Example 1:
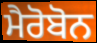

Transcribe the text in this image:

ਮੈਰੋਬੋਨ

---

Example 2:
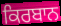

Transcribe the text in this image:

ਕਿਰਬਾਨ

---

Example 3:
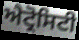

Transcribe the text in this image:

ਐਟ੍ਰੋਸਿਟੀ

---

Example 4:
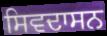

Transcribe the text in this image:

ਸਿਵਦਾਸਨ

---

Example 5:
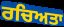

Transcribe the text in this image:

ਰਚਿਅਤਾ